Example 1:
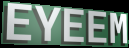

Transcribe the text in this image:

EYEEM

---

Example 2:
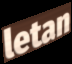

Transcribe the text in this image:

letan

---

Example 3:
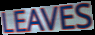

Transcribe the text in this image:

LEAVES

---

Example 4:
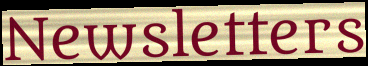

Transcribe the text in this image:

Newsletters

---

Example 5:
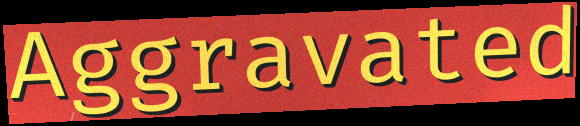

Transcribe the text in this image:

Aggravated